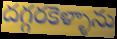
దగ్గరకెళ్ళాను